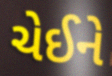
ચેઈને